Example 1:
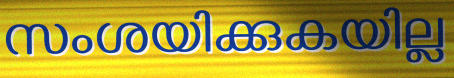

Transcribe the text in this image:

സംശയിക്കുകയില്ല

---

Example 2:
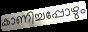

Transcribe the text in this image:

കാണിച്ചപ്പോഴും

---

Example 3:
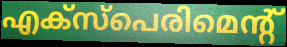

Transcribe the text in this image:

എക്സ്പെരിമെന്റ്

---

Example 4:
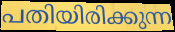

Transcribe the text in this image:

പതിയിരിക്കുന്ന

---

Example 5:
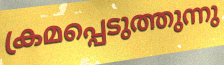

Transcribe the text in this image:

ക്രമപ്പെടുത്തുന്നു